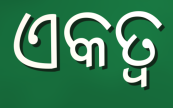
ଏକତ୍ୱ